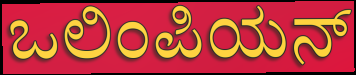
ಒಲಿಂಪಿಯನ್